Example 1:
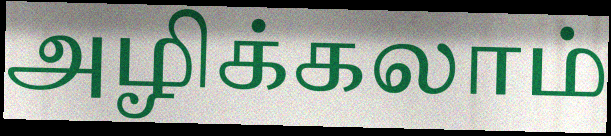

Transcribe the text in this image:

அழிக்கலாம்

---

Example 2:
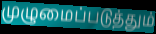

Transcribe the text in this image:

முழுமைப்படுத்தும்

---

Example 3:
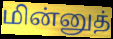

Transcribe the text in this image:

மின்னுத்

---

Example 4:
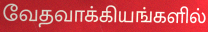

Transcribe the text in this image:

வேதவாக்கியங்களில்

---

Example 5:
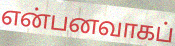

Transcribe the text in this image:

என்பனவாகப்